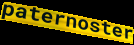
paternoster